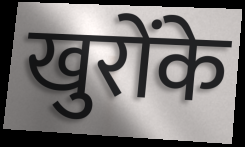
खुरोंके